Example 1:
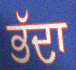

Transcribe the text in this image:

ਭੱਦਾ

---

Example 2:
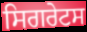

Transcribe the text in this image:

ਸਿਗਰੇਟਸ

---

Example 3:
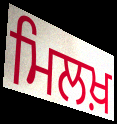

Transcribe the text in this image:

ਮਿਲਖ਼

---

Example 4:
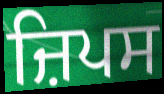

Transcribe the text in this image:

ਜ਼ਿਪਸ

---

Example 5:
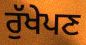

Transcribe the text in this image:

ਰੁੱਖੇਪਣ